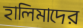
হালিমাদের